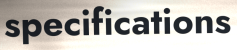
specifications